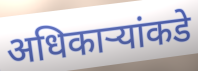
अधिकार्‍यांकडे